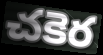
చకెర